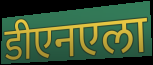
डीएनएला